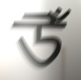
উঁ